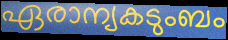
ഏരാന്യകടുംബം